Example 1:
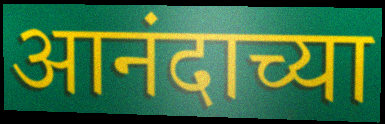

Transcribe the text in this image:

आनंदाच्या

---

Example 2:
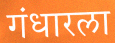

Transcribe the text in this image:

गंधारला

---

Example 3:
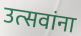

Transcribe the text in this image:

उत्सवांना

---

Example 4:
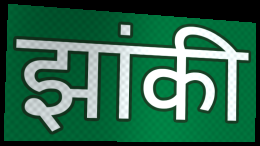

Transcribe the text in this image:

झांकी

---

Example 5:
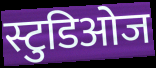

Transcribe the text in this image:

स्टुडिओज